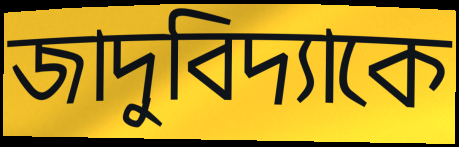
জাদুবিদ্যাকে